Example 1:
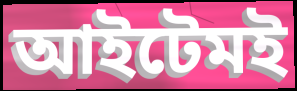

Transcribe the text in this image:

আইটেমই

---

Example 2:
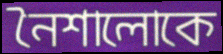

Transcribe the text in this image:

নৈশালোকে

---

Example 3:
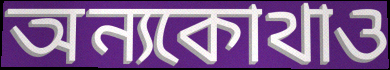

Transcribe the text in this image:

অন্যকোথাও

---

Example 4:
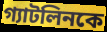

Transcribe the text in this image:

গ্যাটলিনকে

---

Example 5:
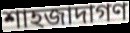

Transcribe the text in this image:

শাহজাদাগণ